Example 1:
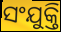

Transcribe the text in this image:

ସଂଯୁକ୍ତି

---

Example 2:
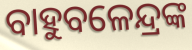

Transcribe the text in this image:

ବାହୁବଳେନ୍ଦ୍ରଙ୍କ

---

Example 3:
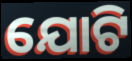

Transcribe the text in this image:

ଯୋଟି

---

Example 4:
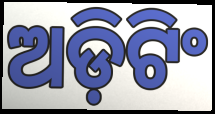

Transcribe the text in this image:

ଅଡ଼ିଟିଂ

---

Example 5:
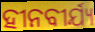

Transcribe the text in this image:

ହୀନବୀର୍ଯ୍ୟ